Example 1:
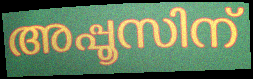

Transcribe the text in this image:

അപ്പൂസിന്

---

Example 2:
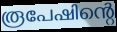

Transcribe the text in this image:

രൂപേഷിന്റെ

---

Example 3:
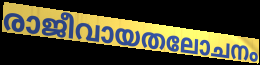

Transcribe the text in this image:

രാജീവായതലോചനം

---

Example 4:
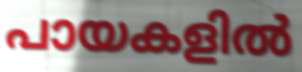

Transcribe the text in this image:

പായകളിൽ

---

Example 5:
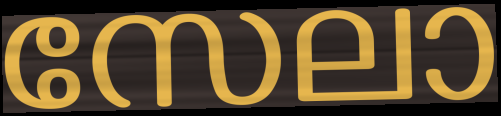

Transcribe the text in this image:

സേലാ